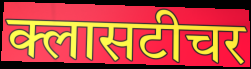
क्लासटीचर